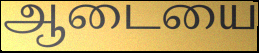
ஆடையை